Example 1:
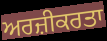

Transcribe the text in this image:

ਅਰਜ਼ੀਕਰਤਾ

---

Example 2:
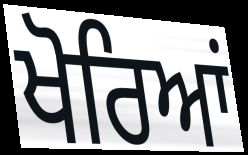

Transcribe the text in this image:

ਖੋਰਿਆਂ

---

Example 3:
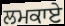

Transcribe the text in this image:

ਲਮਕਾਏ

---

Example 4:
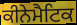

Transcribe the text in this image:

ਕੀਨੇਮੈਟਿਕ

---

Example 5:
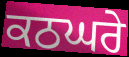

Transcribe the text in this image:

ਕਠਘਰੇ